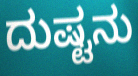
ದುಷ್ಟನು